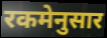
रकमेनुसार